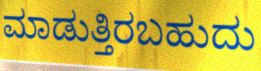
ಮಾಡುತ್ತಿರಬಹುದು